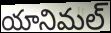
యానిమల్